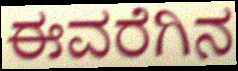
ಈವರೆಗಿನ